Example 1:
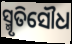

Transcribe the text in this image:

ସ୍ମୃତିସୌଧ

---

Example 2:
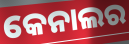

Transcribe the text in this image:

କେନାଲର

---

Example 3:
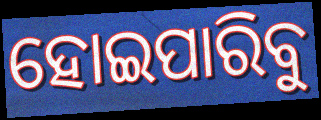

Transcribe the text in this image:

ହୋଇପାରିବୁ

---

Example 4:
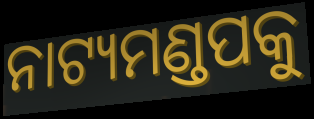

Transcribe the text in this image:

ନାଟ୍ୟମଣ୍ଡପକୁ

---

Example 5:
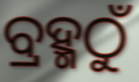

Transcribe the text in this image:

ବ୍ରହ୍ମଠୁଁ